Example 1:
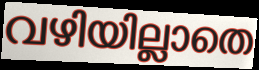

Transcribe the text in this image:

വഴിയില്ലാതെ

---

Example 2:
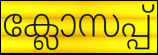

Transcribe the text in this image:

ക്ലോസപ്പ്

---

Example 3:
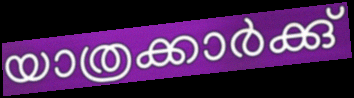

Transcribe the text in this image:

യാത്രക്കാർക്കു്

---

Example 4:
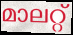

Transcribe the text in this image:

മാലറ്റ്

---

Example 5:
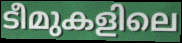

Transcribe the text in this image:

ടീമുകളിലെ